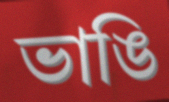
ভাঙি